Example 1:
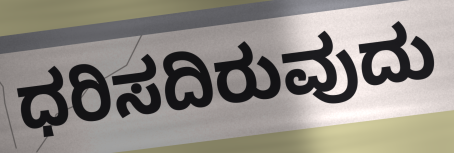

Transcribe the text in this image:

ಧರಿಸದಿರುವುದು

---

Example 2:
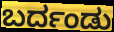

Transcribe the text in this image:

ಬರ್ದಂಡು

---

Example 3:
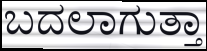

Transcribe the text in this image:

ಬದಲಾಗುತ್ತಾ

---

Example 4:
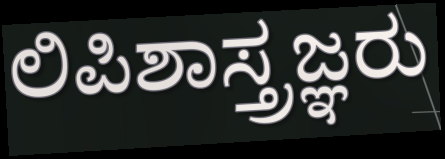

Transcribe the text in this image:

ಲಿಪಿಶಾಸ್ತ್ರಜ್ಞರು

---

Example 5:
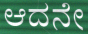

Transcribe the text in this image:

ಆದನೇ